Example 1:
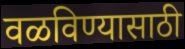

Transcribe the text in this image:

वळविण्यासाठी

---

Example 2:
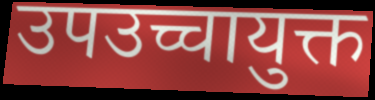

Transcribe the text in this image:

उपउच्चायुक्त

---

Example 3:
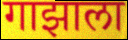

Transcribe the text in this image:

गाझाला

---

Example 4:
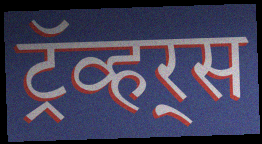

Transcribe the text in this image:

ट्रॅव्हर्स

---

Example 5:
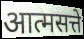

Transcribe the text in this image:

आत्मसत्ते